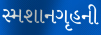
સ્મશાનગૃહની